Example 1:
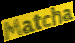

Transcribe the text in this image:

Matcha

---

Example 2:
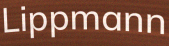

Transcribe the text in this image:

Lippmann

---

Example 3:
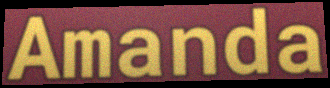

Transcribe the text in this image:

Amanda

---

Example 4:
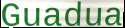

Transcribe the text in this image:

Guadua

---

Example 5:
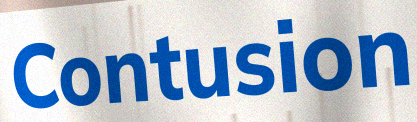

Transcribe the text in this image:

Contusion